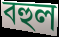
বহুল